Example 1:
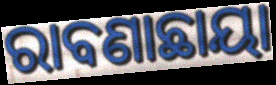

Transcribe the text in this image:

ରାବଣାଛାୟା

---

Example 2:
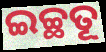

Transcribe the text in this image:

ଇଚ୍ଛତୂ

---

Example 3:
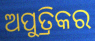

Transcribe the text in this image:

ଅପୁତ୍ରିକର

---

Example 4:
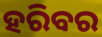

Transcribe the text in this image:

ହରିବର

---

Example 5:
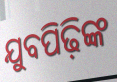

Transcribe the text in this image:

ଯୁବପିଢ଼ିଙ୍କ